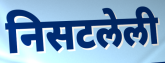
निसटलेली